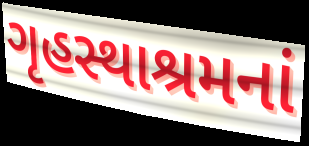
ગૃહસ્થાશ્રમનાં